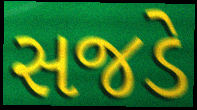
સજડે